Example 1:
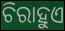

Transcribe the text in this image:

ଚିରାହୁଏ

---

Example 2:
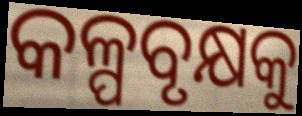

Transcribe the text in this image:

କଳ୍ପବୃକ୍ଷକୁ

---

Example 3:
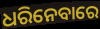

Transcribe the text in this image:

ଧରିନେବାରେ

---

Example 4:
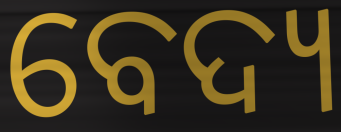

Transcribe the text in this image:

ବେଦ୍ୟ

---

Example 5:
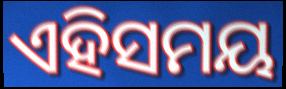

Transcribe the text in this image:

ଏହିସମୟ